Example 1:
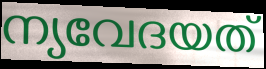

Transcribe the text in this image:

ന്യവേദയത്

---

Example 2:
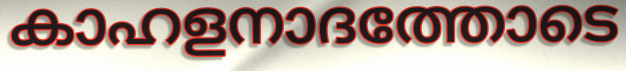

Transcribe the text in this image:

കാഹളനാദത്തോടെ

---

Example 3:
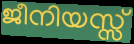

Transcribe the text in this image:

ജീനിയസ്സ്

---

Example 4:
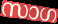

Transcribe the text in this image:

സാഗ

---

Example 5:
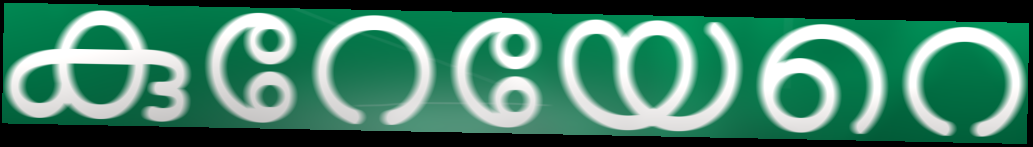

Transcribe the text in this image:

കുറേയേറെ